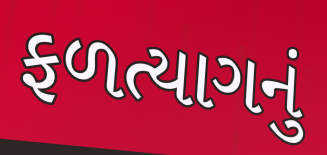
ફળત્યાગનું